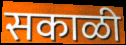
सकाळी